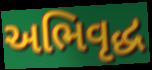
અભિવૃદ્ધ